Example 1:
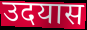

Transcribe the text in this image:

उदयास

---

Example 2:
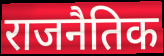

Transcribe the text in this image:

राजनैतिक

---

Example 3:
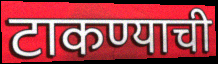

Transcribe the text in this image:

टाकण्याची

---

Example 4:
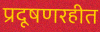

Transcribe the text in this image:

प्रदूषणरहीत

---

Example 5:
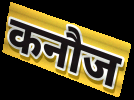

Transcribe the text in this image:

कनौज